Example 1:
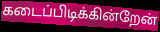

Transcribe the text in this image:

கடைப்பிடிக்கின்றேன்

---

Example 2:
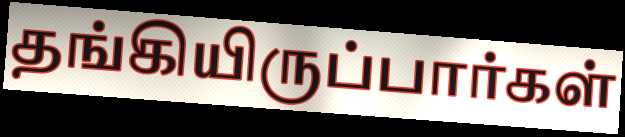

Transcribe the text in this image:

தங்கியிருப்பார்கள்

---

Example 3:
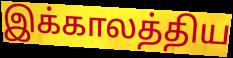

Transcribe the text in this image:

இக்காலத்திய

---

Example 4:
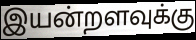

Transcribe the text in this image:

இயன்றளவுக்கு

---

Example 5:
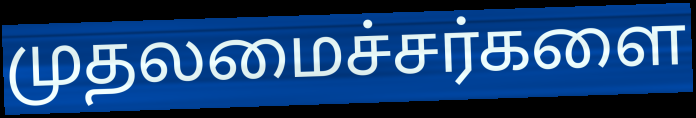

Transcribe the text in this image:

முதலமைச்சர்களை